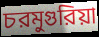
চরমুগুরিয়া